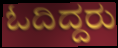
ಓದಿದ್ದರು